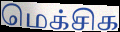
மெக்சிக